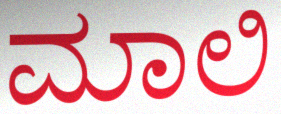
ಮಾಲಿ